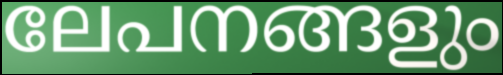
ലേപനങ്ങളും